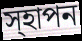
স্হাপন